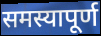
समस्यापूर्ण